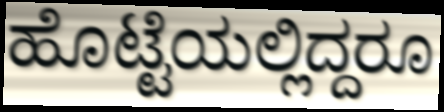
ಹೊಟ್ಟೆಯಲ್ಲಿದ್ದರೂ